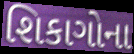
શિકાગોના